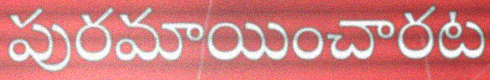
పురమాయించారట